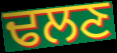
ਢਲਣ